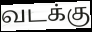
வடக்கு